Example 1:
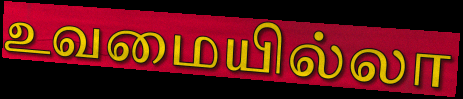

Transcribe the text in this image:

உவமையில்லா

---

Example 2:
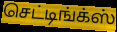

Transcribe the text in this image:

செட்டிங்க்ஸ்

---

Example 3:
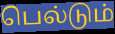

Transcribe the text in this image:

பெல்டும்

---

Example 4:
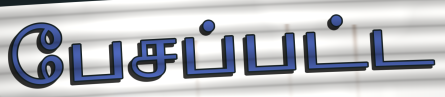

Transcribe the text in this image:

பேசப்பட்ட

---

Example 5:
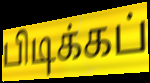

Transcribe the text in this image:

பிடிக்கப்